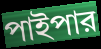
পাইপার